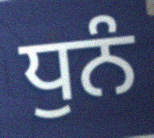
ਧੁਨੰ